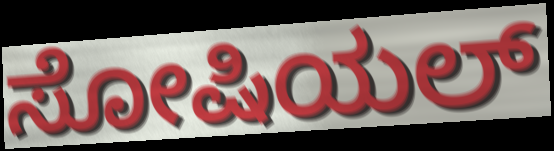
ಸೋಷಿಯಲ್